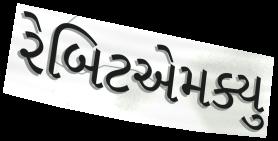
રેબિટએમક્યુ